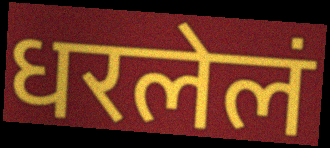
धरलेलं